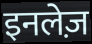
इनलेज़